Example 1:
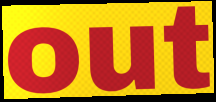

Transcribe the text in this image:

out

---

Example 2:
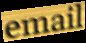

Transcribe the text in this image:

email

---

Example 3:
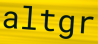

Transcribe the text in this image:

altgr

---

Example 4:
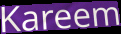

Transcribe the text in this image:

Kareem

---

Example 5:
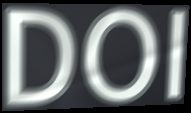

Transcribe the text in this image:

DOI